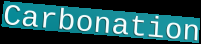
Carbonation